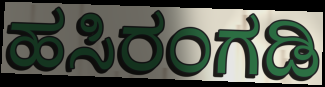
ಹಸಿರಂಗಡಿ